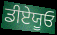
ਡੀਏਯੂਓ